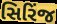
સિરિંજ